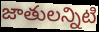
జాతులన్నిటి